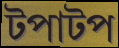
টপাটপ